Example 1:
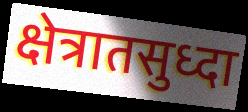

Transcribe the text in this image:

क्षेत्रातसुध्दा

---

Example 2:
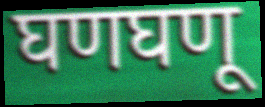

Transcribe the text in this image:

घणघणू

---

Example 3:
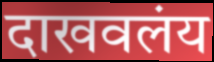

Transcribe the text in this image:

दाखवलंय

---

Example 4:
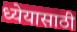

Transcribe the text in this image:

ध्येयासाठी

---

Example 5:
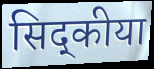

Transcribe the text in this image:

सिद्‌कीया